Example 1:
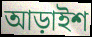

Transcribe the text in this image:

আড়াইশ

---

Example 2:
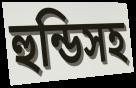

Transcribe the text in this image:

হুন্ডিসহ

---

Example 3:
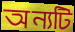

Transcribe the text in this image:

অন্যটি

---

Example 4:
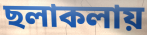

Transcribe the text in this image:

ছলাকলায়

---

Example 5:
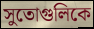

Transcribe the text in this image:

সুতোগুলিকে